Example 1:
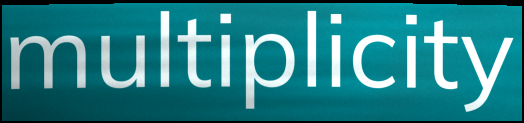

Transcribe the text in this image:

multiplicity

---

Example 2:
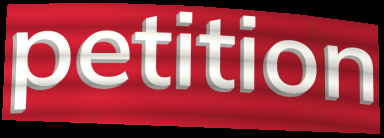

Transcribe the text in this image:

petition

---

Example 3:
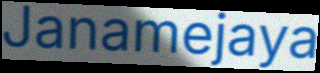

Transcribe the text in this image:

Janamejaya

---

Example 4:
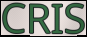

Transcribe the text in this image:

CRIS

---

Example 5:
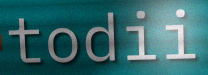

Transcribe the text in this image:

todii